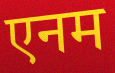
एनम